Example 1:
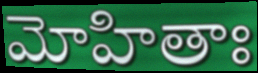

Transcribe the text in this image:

మోహితాః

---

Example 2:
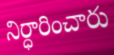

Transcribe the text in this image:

నిర్ధారించారు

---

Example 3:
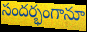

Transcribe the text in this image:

సందర్భంగానూ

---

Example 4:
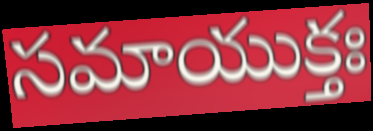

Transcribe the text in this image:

సమాయుక్తః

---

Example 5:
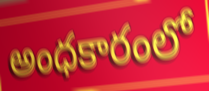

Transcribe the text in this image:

అంధకారంలో